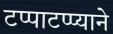
टप्पाटप्प्याने